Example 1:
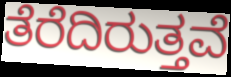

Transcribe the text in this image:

ತೆರೆದಿರುತ್ತವೆ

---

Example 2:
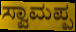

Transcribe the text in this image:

ಸ್ವಾಮಪ್ಪ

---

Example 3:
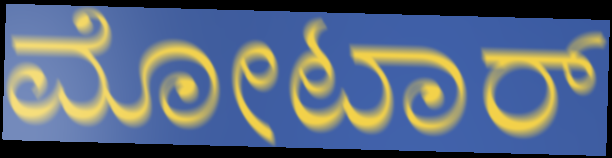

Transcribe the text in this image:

ಮೋಟಾರ್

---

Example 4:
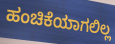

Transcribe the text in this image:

ಹಂಚಿಕೆಯಾಗಲಿಲ್ಲ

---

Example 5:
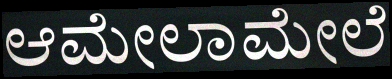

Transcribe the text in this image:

ಆಮೇಲಾಮೇಲೆ